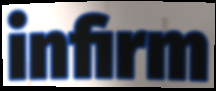
infirm